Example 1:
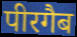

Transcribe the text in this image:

पीरगैब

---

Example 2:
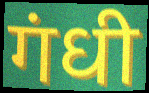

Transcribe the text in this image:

गंधी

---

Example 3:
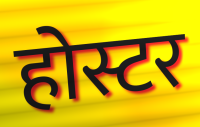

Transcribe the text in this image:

होस्टर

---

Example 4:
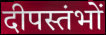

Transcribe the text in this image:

दीपस्तंभों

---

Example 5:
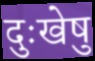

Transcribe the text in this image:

दुःखेषु